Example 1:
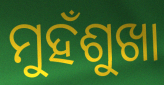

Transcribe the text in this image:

ମୁହଁଶୁଖା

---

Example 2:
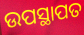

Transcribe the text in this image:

ଉପସ୍ଥାପତ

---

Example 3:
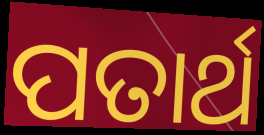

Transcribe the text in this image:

ପତାର୍ଥ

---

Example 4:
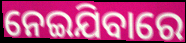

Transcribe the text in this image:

ନେଇଯିବାରେ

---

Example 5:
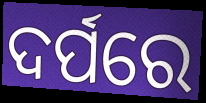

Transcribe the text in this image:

ଦର୍ପରେ